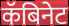
कॅबिनेट